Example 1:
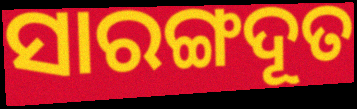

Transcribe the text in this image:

ସାରଙ୍ଗଦୂତ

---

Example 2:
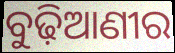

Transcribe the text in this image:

ବୁଢ଼ିଆଣୀର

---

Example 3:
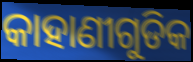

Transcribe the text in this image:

କାହାଣୀଗୁଡିକ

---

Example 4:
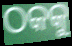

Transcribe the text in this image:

ଠକକୁ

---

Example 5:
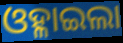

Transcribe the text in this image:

ଓହ୍ଳାଇଲା